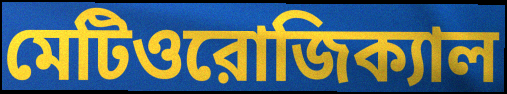
মেটিওরোজিক্যাল